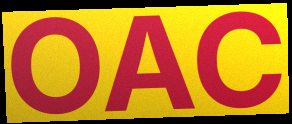
OAC